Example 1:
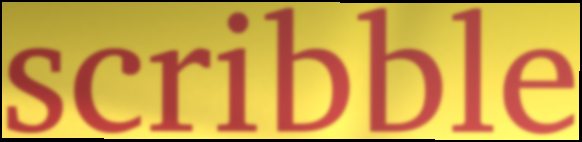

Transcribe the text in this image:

scribble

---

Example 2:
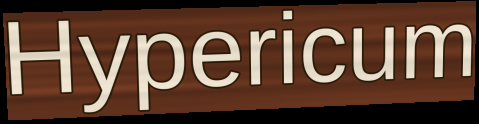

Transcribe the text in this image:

Hypericum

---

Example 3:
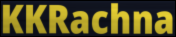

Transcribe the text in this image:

KKRachna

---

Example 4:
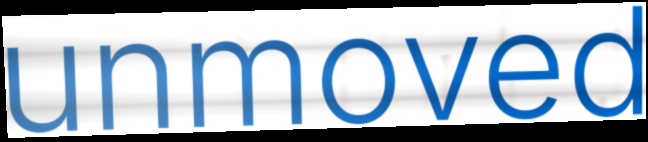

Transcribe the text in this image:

unmoved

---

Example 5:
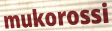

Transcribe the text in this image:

mukorossi